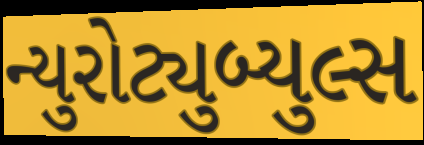
ન્યુરોટ્યુબ્યુલ્સ